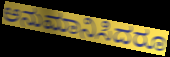
ಅನುಮಾನಿಸಿದರೂ